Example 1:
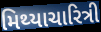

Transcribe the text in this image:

મિથ્યાચારિત્રી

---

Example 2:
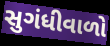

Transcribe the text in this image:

સુગંધીવાળો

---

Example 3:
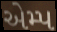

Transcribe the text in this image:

એમ્પ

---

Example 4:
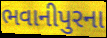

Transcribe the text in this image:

ભવાનીપુરના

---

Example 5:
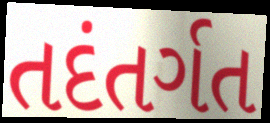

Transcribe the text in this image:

તદંતર્ગત